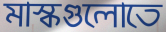
মাস্কগুলোতে